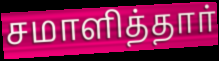
சமாளித்தார்